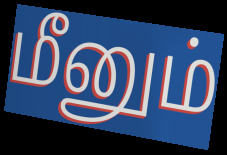
மீனும்